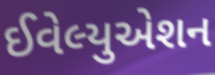
ઈવેલ્યુએશન